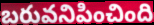
బరువనిపించింది